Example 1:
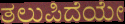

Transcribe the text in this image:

ತಲುಪಿದೆಯೇ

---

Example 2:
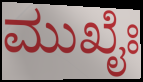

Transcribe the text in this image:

ಮುಖೈಃ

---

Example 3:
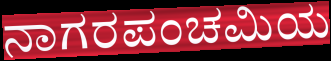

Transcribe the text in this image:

ನಾಗರಪಂಚಮಿಯ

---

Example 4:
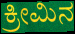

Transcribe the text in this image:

ಕ್ರೀಮಿನ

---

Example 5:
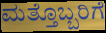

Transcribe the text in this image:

ಮತ್ತೊಬ್ಬರಿಗೆ